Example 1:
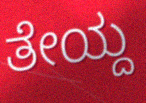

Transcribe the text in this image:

ತೇಯ್ದ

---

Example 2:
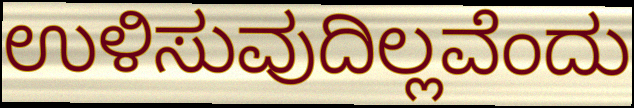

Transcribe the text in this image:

ಉಳಿಸುವುದಿಲ್ಲವೆಂದು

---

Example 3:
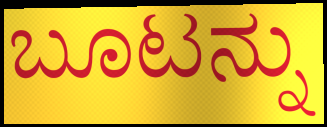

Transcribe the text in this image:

ಬೂಟನ್ನು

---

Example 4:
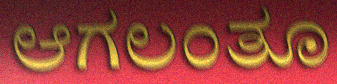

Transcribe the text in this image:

ಆಗಲಂತೂ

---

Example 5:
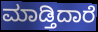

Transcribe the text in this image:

ಮಾಡ್ತಿದಾರೆ